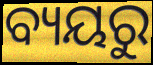
ବ୍ୟୟରୁ